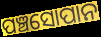
ପଞ୍ଚସୋପାନ